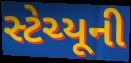
સ્ટેચ્યૂની